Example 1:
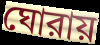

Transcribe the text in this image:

ঘোরায়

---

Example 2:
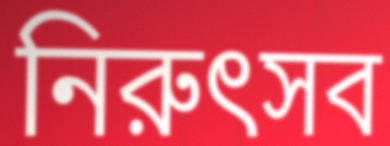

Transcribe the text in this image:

নিরুৎসব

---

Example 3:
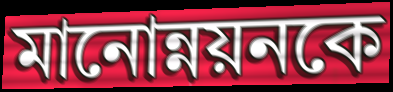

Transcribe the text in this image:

মানোন্নয়নকে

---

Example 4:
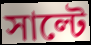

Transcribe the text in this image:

সাল্টে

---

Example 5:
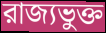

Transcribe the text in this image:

রাজ্যভুক্ত